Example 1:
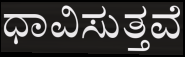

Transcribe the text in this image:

ಧಾವಿಸುತ್ತವೆ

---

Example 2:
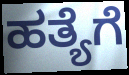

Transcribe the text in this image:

ಹತ್ಯೆಗೆ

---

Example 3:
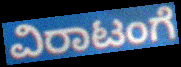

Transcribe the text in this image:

ವಿರಾಟಂಗೆ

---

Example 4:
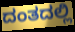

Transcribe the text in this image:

ದಂತದಲ್ಲಿ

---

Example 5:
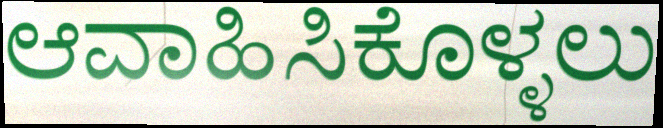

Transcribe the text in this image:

ಆವಾಹಿಸಿಕೊಳ್ಳಲು